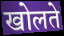
खोलते